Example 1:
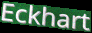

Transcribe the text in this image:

Eckhart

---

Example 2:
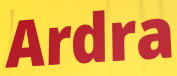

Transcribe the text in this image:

Ardra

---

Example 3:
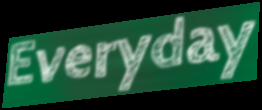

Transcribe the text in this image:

Everyday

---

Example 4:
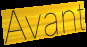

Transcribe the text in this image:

Avant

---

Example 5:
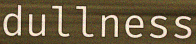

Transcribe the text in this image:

dullness